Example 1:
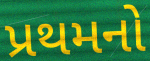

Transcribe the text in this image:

પ્રથમનો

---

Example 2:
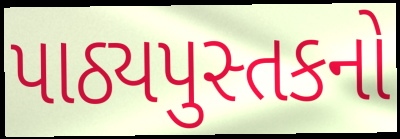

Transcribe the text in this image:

પાઠ્યપુસ્તકનો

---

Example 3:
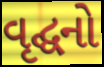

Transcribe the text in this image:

વૃદ્ઘનો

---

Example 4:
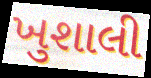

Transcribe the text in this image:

ખુશાલી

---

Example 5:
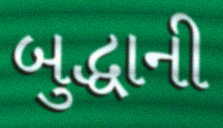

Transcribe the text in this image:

બુદ્ધાની